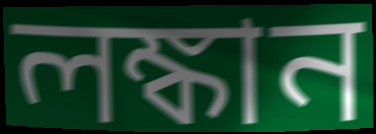
লঙ্কান